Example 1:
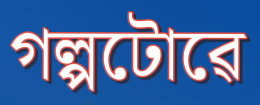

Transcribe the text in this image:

গল্পটোৱে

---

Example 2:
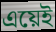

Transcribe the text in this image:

এয়েই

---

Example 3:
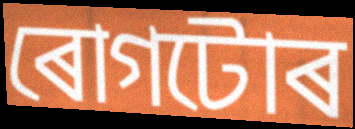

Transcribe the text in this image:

ৰোগটোৰ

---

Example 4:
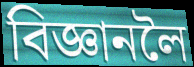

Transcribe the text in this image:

বিজ্ঞানলৈ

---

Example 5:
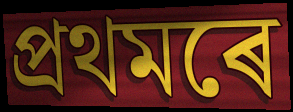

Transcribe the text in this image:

প্ৰথমৰে